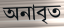
অনাবৃত